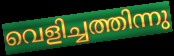
വെളിച്ചത്തിന്നു